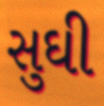
સુઘી